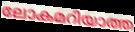
ലോകമറിയാത്ത